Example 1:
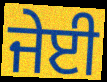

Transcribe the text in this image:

ਜੇਈ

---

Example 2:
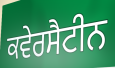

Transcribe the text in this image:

ਕਵੇਰਸੈਟੀਨ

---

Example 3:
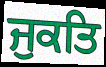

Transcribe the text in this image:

ਜੁਕਤਿ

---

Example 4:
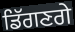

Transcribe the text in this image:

ਡਿੱਗਣਗੇ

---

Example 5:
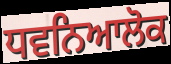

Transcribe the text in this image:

ਧਵਨਿਆਲੋਕ